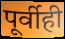
पूर्वीही